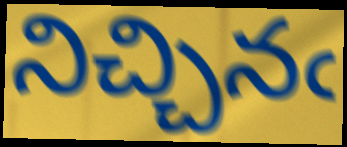
నిచ్చినఁ